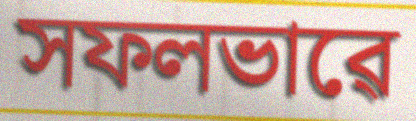
সফলভাৱে